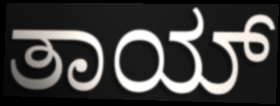
ತಾಯ್